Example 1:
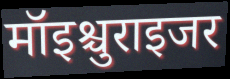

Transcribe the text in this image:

मॉइश्चुराइजर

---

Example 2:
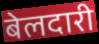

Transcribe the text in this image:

बेलदारी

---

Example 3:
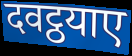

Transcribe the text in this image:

दवट्ठयाए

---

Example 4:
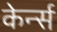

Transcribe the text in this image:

केर्न्स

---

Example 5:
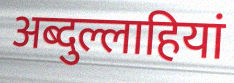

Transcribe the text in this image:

अब्दुल्लाहियां